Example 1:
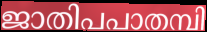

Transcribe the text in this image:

ജാതിപപാതമ്പി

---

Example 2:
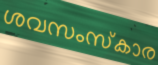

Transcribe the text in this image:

ശവസംസ്കാര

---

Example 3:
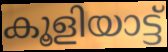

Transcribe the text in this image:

കൂളിയാട്ട്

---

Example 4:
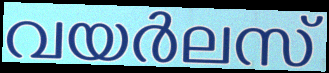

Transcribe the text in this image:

വയർലസ്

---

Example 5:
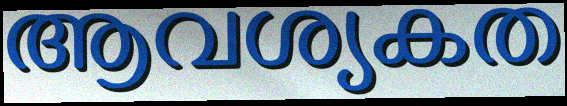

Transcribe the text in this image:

ആവശ്യകത